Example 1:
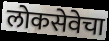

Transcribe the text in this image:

लोकसेवेचा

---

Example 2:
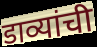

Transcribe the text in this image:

डाव्यांची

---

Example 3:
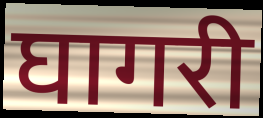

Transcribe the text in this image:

घागरी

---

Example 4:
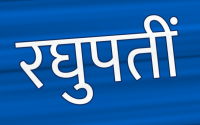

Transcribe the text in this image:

रघुपतीं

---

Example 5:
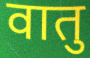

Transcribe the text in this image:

वातु